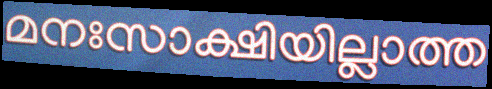
മനഃസാക്ഷിയില്ലാത്ത